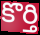
కొర్తి